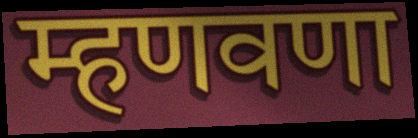
म्हणवणा